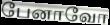
பேனாவோ